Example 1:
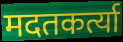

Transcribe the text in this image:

मदतकर्त्या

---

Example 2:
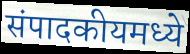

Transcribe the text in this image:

संपादकीयमध्ये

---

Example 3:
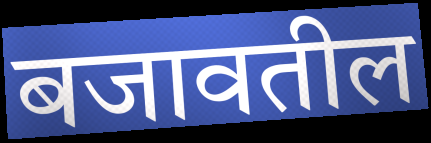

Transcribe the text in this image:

बजावतील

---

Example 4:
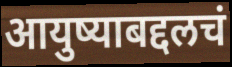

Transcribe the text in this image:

आयुष्याबद्दलचं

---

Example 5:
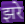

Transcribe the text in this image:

झरे